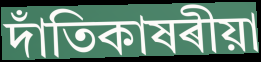
দাঁতিকাষৰীয়া